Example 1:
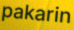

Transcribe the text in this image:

pakarin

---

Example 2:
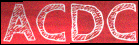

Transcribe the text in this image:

ACDC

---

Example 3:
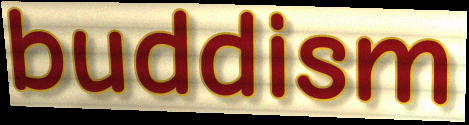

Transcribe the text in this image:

buddism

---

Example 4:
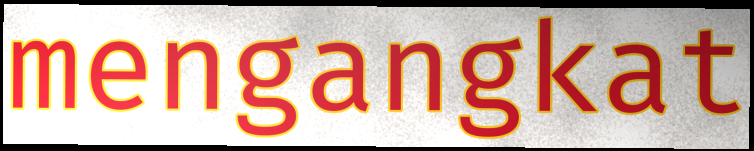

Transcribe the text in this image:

mengangkat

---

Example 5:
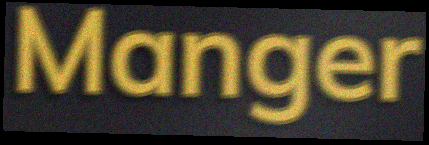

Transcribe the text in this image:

Manger